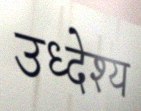
उध्देश्य